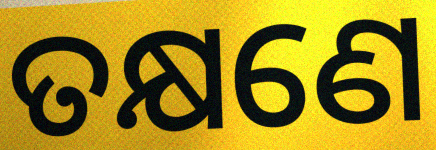
ତକ୍ଷଣେ